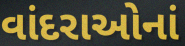
વાંદરાઓનાં